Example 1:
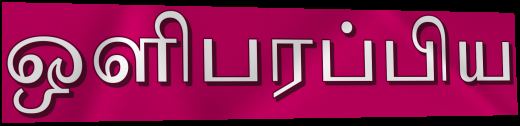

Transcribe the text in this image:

ஒளிபரப்பிய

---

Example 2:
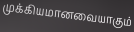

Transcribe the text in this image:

முக்கியமானவையாகும்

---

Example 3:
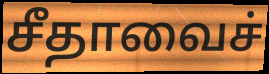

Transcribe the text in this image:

சீதாவைச்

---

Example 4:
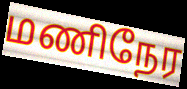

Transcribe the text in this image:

மணிநேர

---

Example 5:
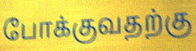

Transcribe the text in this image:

போக்குவதற்கு